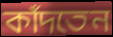
কাঁদতেন